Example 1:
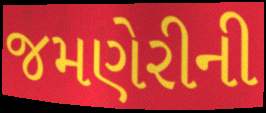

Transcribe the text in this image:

જમણેરીની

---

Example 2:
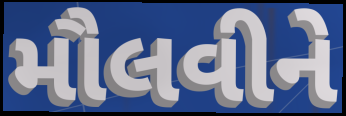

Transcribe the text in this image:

મૌલવીને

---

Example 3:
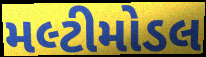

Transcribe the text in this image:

મલ્ટીમોડલ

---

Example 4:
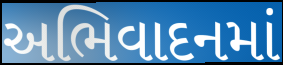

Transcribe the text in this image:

અભિવાદનમાં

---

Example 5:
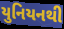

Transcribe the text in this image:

યુનિયનથી